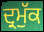
ਦ੍ਰਮੁੱਕ